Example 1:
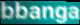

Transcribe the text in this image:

bbanga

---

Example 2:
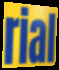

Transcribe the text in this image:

rial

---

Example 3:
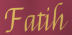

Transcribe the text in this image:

Fatih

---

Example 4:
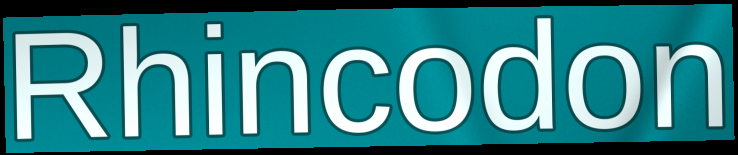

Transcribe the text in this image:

Rhincodon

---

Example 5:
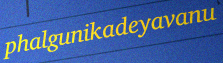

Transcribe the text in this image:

phalgunikadeyavanu